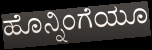
ಹೊನ್ನಿಂಗೆಯೂ